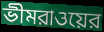
ভীমরাওয়ের